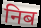
निब